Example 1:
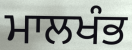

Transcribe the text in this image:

ਮਾਲਖੰਭ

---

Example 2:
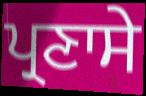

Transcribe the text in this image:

ਪ੍ਰਣਾਸੇ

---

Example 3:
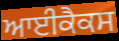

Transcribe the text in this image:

ਆਈਕੈਕਸ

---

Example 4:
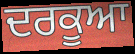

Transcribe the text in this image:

ਦਰਕੂਆ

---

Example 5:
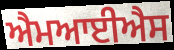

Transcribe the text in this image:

ਐਮਆਈਐਸ